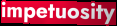
impetuosity